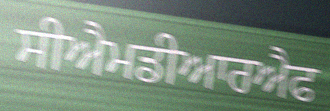
ਸੀਐਮਡੀਆਰਐਫ